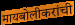
मायबोलीकरांची